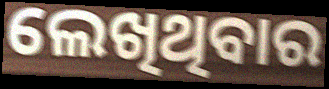
ଲେଖିଥିବାର